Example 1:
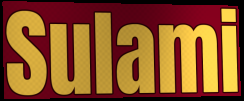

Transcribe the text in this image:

Sulami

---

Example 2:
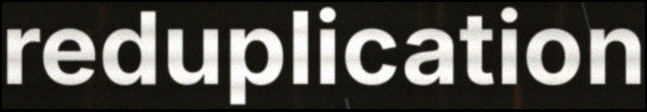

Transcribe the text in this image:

reduplication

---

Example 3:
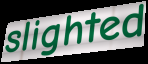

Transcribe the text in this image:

slighted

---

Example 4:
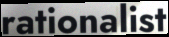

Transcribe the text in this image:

rationalist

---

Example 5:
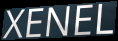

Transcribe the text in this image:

XENEL